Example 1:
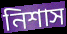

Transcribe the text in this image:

নিশাস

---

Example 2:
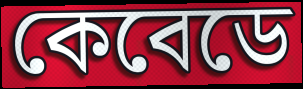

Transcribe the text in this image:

কেবেডে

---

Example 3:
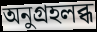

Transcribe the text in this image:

অনুগ্রহলব্ধ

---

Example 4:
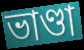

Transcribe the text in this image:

ভাণ্ডা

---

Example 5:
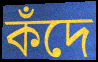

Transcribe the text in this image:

কঁদে